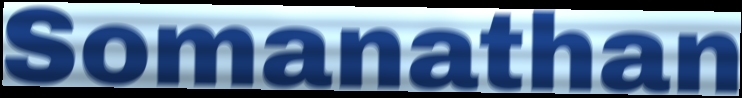
Somanathan